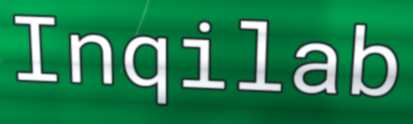
Inqilab